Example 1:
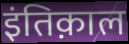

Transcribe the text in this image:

इंतिक़ाल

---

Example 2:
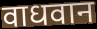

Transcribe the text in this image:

वाधवान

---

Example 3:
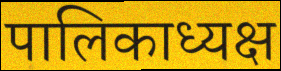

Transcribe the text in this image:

पालिकाध्यक्ष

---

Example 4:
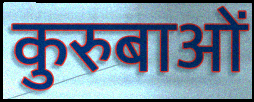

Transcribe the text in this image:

कुरुबाओं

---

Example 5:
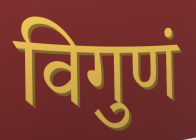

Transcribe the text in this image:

विगुणं